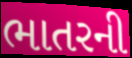
ભાતરની